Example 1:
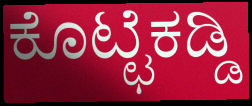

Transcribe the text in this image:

ಕೊಟ್ಟೆಕಡ್ಡಿ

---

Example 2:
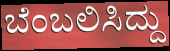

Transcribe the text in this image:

ಬೆಂಬಲಿಸಿದ್ದು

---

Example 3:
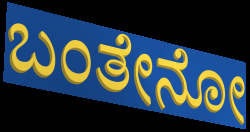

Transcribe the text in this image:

ಬಂತೇನೋ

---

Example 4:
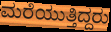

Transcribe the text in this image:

ಮರೆಯುತ್ತಿದ್ದರು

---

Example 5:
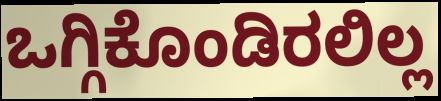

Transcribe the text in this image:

ಒಗ್ಗಿಕೊಂಡಿರಲಿಲ್ಲ